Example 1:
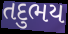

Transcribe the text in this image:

તદુભય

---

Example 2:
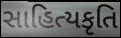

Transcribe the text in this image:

સાહિત્યકૃતિ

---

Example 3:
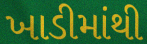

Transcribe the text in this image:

ખાડીમાંથી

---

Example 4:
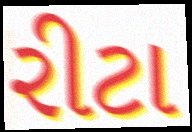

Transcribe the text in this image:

રીટા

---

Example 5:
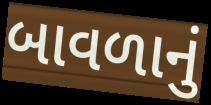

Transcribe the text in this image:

બાવળાનું